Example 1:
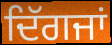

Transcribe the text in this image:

ਦਿੱਗਜਾਂ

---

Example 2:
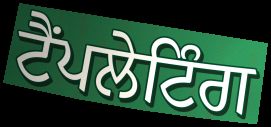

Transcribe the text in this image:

ਟੈਂਪਲੇਟਿੰਗ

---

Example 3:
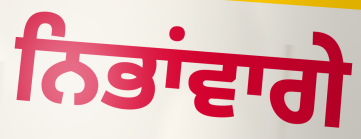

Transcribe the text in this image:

ਨਿਭਾਂਵਾਗੇ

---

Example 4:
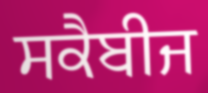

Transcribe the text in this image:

ਸਕੈਬੀਜ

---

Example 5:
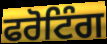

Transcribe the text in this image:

ਫਰੋਟਿੰਗ